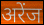
अरेंज